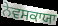
ਨੇਵਸਕਾਯਾ